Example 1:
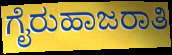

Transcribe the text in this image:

ಗೈರುಹಾಜರಾತಿ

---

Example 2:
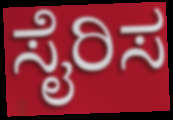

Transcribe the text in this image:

ಸೈರಿಸ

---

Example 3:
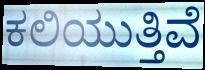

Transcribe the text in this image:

ಕಲಿಯುತ್ತಿವೆ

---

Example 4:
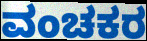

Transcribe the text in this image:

ವಂಚಕರ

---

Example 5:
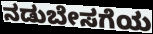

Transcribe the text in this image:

ನಡುಬೇಸಗೆಯ